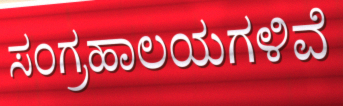
ಸಂಗ್ರಹಾಲಯಗಳಿವೆ